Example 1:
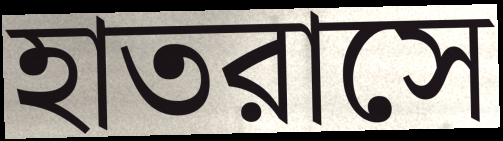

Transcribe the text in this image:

হাতরাসে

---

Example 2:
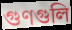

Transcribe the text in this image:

গুণগুলি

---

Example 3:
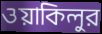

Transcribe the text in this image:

ওয়াকিলুর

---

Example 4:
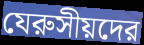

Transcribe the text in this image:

যেরুসীয়দের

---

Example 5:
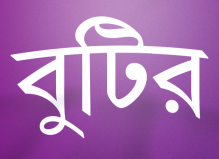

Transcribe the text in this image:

বুটির